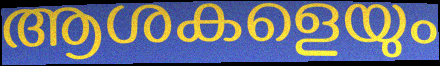
ആശകളെയും